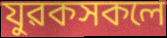
যুৱকসকলে